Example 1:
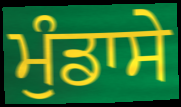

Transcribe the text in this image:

ਮੁੰਡਾਸੇ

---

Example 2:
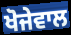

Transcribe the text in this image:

ਖੋਜੇਵਾਲ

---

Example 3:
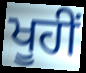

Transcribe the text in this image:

ਖੂਹੀਂ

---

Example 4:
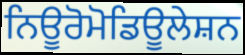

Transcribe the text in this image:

ਨਿਊਰੋਮੋਡਿਊਲੇਸ਼ਨ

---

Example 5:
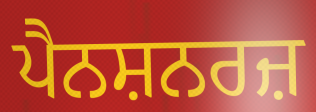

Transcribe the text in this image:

ਪੈਨਸ਼ਨਰਜ਼